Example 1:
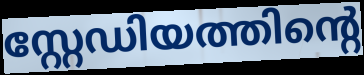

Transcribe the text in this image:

സ്റ്റേഡിയത്തിന്റെ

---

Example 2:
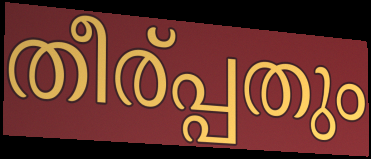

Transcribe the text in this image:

തീര്പ്പതും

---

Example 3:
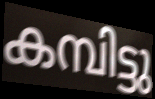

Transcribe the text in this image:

കമ്പിട്ടു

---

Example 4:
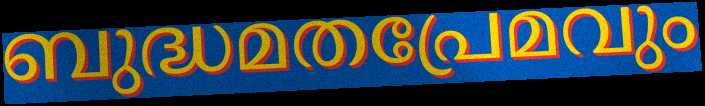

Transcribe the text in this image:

ബുദ്ധമതപ്രേമവും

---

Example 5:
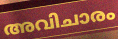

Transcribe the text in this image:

അവിചാരം